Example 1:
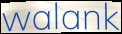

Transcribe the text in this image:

walank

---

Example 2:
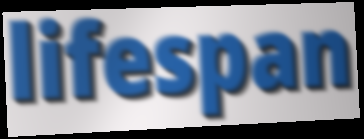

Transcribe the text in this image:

lifespan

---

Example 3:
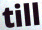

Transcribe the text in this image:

till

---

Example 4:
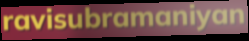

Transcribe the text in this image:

ravisubramaniyan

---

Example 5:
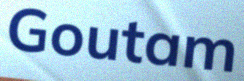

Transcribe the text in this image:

Goutam